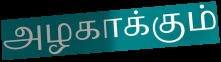
அழகாக்கும்